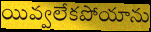
యివ్వలేకపోయాను